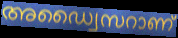
അഡ്വൈസറാണ്